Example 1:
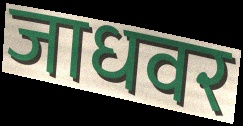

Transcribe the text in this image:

जाधवर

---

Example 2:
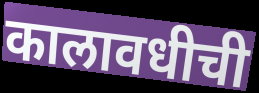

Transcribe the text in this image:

कालावधीची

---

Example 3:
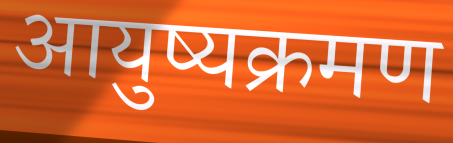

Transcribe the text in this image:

आयुष्यक्रमण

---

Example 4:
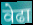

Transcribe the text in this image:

वेढा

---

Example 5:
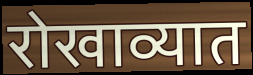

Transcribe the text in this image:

रोखाव्यात